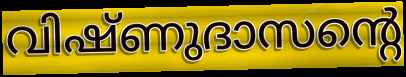
വിഷ്ണുദാസന്റെ